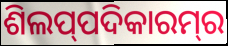
ଶିଲପ୍‍ପଦିକାରମ୍‍ର